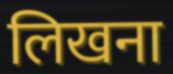
लिखना